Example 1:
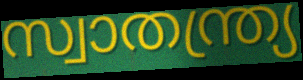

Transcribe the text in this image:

സ്വാതന്ത്ര്യ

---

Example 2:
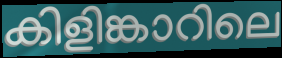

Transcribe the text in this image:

കിളിങ്കാറിലെ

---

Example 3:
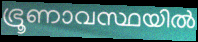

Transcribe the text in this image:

ഭ്രൂണാവസ്ഥയിൽ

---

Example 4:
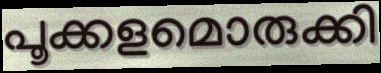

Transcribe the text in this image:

പൂക്കളമൊരുക്കി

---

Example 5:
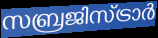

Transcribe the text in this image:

സബ്രജിസ്ട്രാർ